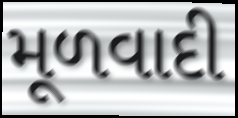
મૂળવાદી